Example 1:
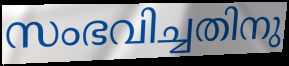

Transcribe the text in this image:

സംഭവിച്ചതിനു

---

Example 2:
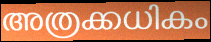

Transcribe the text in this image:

അത്രക്കധികം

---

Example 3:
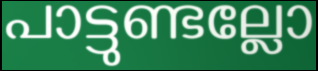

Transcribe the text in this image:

പാട്ടുണ്ടല്ലോ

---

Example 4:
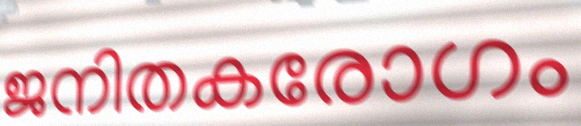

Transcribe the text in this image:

ജനിതകരോഗം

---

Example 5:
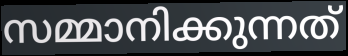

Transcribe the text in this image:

സമ്മാനിക്കുന്നത്